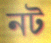
নট